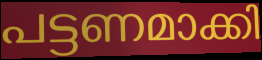
പട്ടണമാക്കി